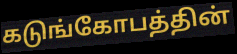
கடுங்கோபத்தின்